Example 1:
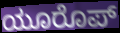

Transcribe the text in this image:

ಯೂರೊಪ್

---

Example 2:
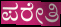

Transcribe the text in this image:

ಪರೇತಿ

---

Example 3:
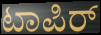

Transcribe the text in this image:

ಟಾಪಿರ್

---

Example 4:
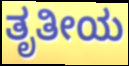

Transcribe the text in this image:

ತೃತೀಯ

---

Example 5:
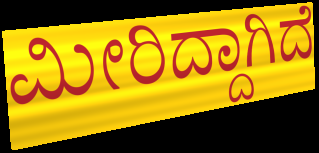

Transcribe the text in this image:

ಮೀರಿದ್ದಾಗಿದೆ